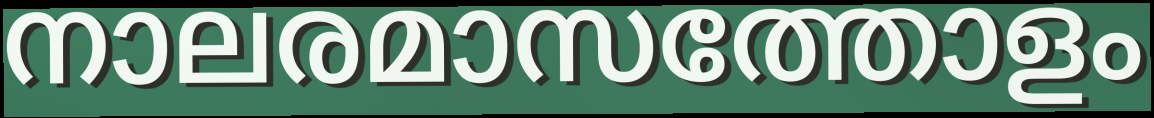
നാലരമാസത്തോളം